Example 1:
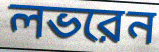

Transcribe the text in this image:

লভরেন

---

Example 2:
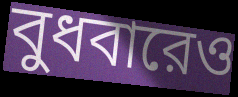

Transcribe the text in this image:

বুধবারেও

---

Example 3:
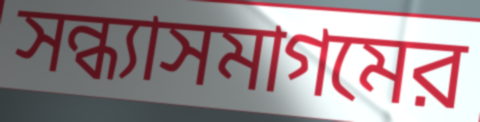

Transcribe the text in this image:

সন্ধ্যাসমাগমের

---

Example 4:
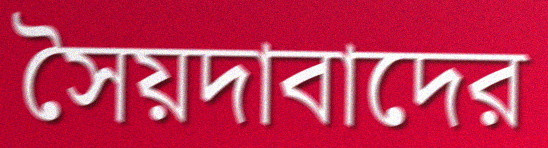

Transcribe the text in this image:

সৈয়দাবাদের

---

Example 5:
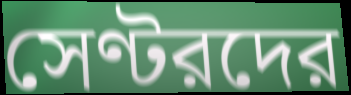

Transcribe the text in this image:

সেণ্টরদের